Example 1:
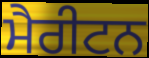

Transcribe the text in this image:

ਮੈਰੀਟਨ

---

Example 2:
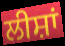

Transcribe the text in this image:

ਲੀਸ਼ਾਂ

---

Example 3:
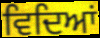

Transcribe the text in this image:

ਵਿਦਿਆਂ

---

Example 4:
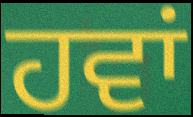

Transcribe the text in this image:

ਹਵਾਂ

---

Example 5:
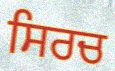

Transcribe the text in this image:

ਸਿਰਚ